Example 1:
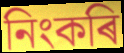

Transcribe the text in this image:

নিংকৰি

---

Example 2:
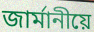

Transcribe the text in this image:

জাৰ্মানীয়ে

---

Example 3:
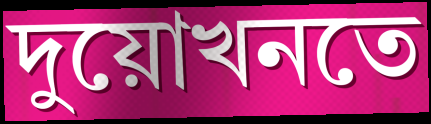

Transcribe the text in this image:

দুয়োখনতে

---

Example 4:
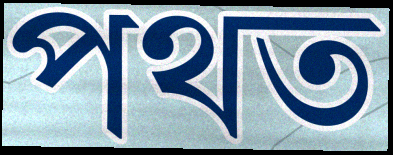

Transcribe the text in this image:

পথত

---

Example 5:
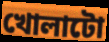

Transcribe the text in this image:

খোলাটো